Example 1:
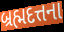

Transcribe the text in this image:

બ્રહ્મદત્તના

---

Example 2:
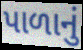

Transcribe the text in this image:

પાળાનું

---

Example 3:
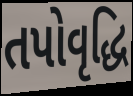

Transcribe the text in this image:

તપોવૃદ્ધિ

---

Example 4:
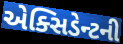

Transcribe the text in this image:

એક્સિડેન્ટની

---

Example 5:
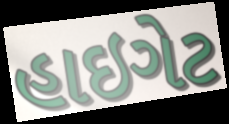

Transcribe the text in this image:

હાઇગેટ